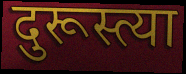
दुरूस्त्या